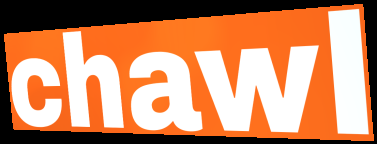
chawl